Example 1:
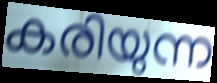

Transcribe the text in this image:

കരിയുന്ന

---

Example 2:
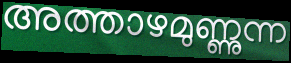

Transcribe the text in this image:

അത്താഴമുണ്ണുന്ന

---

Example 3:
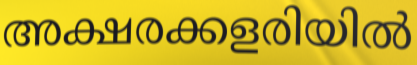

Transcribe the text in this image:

അക്ഷരക്കളരിയിൽ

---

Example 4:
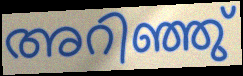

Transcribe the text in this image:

അറിഞ്ഞു്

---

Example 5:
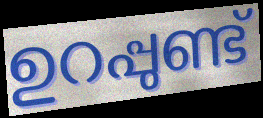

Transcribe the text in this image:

ഉറപ്പുണ്ട്